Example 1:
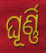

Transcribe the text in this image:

ଘୂର୍ଣ୍ଣି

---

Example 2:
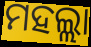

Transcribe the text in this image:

ମହଲ୍ଲା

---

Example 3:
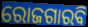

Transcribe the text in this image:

ରୋଜଗାରବି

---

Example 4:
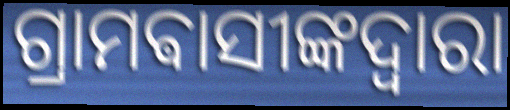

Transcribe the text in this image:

ଗ୍ରାମଵାସୀଙ୍କଦ୍ୱାରା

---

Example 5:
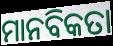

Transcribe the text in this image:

ମାନବିକତା